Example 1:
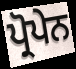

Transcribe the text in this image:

ਪ੍ਰੋਪੇਨ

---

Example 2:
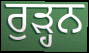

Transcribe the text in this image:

ਰੁੜ੍ਹਨ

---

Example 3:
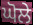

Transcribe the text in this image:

ਘੋਲੇ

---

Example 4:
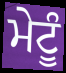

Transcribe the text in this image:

ਮੇਟੂੰ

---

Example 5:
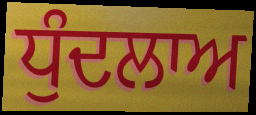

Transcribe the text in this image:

ਧੁੰਦਲਾਅ